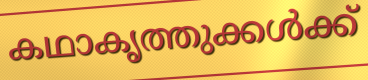
കഥാകൃത്തുക്കൾക്ക്